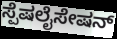
ಸ್ಪೆಷಲೈಸೇಷನ್